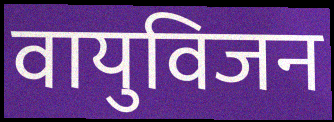
वायुविजन